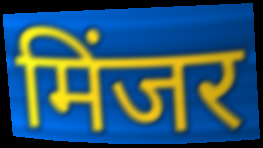
मिंजर